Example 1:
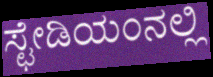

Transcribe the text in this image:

ಸ್ಟೇಡಿಯಂನಲ್ಲಿ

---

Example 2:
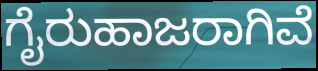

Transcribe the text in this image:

ಗೈರುಹಾಜರಾಗಿವೆ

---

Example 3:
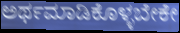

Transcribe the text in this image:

ಅರ್ಥಮಾಡಿಕೊಳ್ಳಬೇಕೇ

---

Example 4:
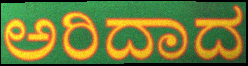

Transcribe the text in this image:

ಅರಿದಾದ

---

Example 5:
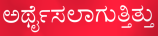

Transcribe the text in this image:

ಅರ್ಥೈಸಲಾಗುತ್ತಿತ್ತು